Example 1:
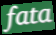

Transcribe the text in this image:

fata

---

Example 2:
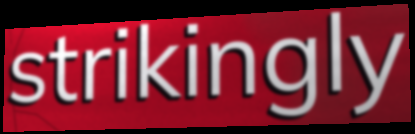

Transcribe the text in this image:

strikingly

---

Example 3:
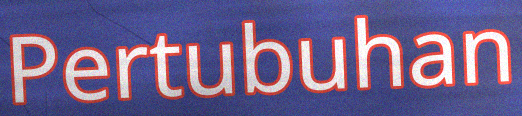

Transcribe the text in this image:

Pertubuhan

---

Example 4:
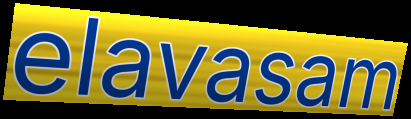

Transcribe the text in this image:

elavasam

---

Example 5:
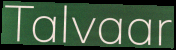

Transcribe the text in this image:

Talvaar